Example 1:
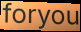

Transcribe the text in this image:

foryou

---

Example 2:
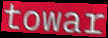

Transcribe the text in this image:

towar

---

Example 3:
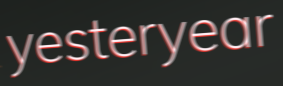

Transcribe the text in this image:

yesteryear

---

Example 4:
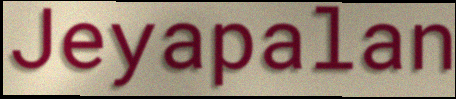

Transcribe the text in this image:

Jeyapalan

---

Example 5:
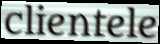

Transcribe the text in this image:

clientele